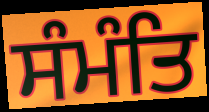
ਸੰਮੰਤਿ